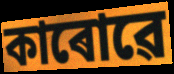
কাৰোৱে